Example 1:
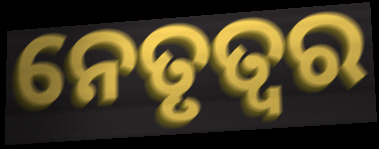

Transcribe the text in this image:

ନେତୃତ୍ଵର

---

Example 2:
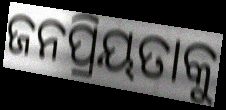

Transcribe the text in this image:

ଜନପ୍ରିୟତାକୁ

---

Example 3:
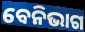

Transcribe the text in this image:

ବେନିଭାଗ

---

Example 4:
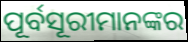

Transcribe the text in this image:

ପୂର୍ବସୂରୀମାନଙ୍କର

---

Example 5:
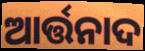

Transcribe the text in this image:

ଆର୍ତ୍ତନାଦ